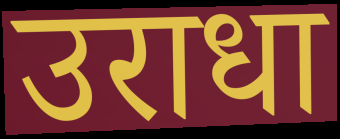
उराधा